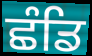
ਛੰਡਿ